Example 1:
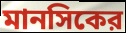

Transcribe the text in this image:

মানসিকের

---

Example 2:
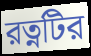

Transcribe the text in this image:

রত্নটির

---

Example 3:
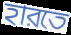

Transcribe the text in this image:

হারতে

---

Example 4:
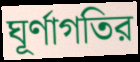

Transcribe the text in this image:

ঘূর্ণাগতির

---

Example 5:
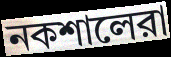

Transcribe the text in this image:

নকশালেরা